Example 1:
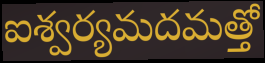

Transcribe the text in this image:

ఐశ్వర్యమదమత్తో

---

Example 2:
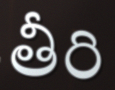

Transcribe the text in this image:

తీరి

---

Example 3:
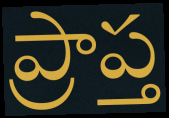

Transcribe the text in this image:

ప్రాప్త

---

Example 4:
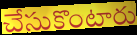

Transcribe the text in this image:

చేసుకొంటారు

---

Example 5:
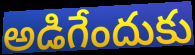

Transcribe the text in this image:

అడిగేందుకు